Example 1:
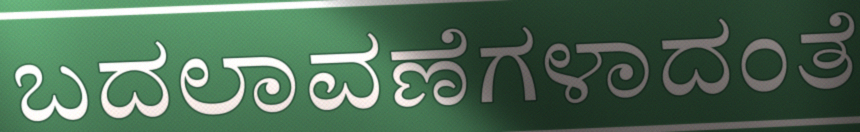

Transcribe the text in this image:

ಬದಲಾವಣೆಗಳಾದಂತೆ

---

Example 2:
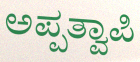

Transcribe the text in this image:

ಅಪ್ಪತ್ವಾಪಿ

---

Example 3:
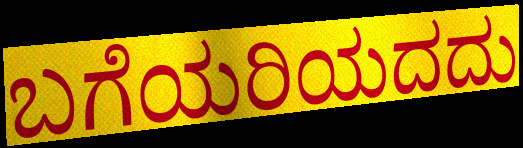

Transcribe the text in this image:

ಬಗೆಯರಿಯದದು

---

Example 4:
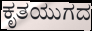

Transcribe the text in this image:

ಕೃತಯುಗದ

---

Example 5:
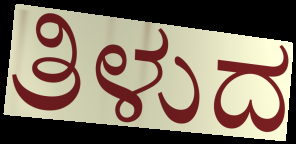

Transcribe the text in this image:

ತಿಳುದ